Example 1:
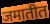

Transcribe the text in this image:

जमातीत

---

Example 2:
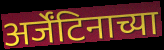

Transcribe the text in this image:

अर्जेंटिनाच्या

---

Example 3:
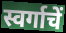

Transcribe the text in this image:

स्वर्गाचें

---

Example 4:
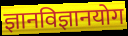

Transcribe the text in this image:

ज्ञानविज्ञानयोग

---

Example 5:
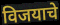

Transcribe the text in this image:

विजयाचे